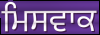
ਮਿਸਵਾਕ